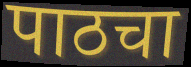
पाठचा